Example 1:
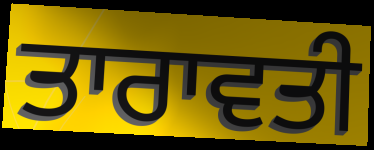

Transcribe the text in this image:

ਤਾਰਾਵਤੀ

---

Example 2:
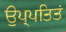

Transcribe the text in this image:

ਉਪ੍ਪਤਿਤਂ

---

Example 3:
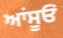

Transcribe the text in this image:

ਆਂਸੂਓਂ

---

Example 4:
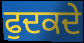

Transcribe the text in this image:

ਫੁਦਕਦੇ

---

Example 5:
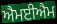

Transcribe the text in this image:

ਐਮਈਐਮ